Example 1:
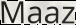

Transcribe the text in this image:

Maaz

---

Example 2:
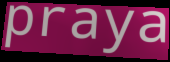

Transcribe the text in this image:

praya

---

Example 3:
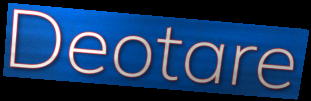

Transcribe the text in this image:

Deotare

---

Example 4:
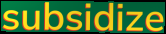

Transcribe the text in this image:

subsidize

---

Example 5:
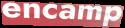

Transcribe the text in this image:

encamp